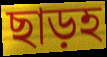
ছাড়হ